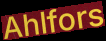
Ahlfors